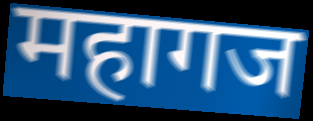
महागज